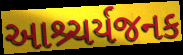
આશ્ર્ચર્યજનક